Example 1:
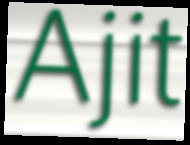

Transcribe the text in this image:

Ajit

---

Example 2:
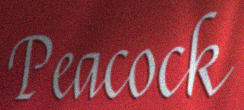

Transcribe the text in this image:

Peacock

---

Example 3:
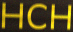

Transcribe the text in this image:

HCH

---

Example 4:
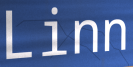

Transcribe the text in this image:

Linn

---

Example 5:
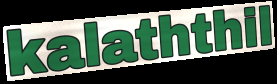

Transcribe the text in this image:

kalaththil